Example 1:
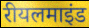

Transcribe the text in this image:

रीयलमाइंड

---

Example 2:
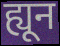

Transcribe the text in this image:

ह्यून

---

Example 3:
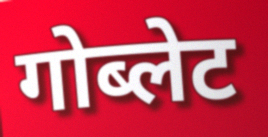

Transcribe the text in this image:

गोब्लेट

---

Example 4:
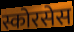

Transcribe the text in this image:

स्कोरसेस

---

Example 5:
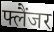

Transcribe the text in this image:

फ्लैंजर